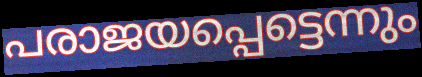
പരാജയപ്പെട്ടെന്നും